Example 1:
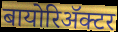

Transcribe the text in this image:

बायोरिॲक्टर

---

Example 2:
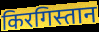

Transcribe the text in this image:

किरगिस्तान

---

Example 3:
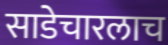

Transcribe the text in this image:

साडेचारलाच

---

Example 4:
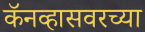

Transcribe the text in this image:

कॅनव्हासवरच्या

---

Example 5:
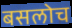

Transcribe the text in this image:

बसलोच